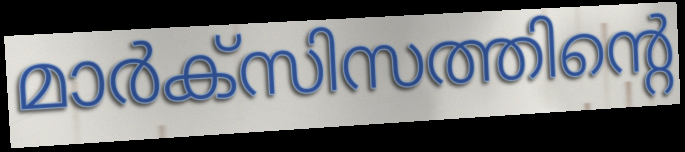
മാർക്സിസത്തിന്റെ